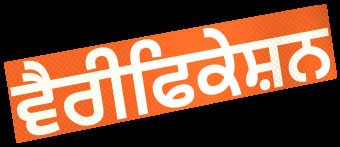
ਵੈਰੀਫਿਕੇਸ਼ਨ